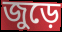
জুড়ে